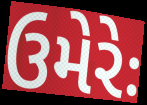
ઉમેરેઃ